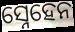
ସ୍ନେହେନ